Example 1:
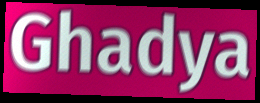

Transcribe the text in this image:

Ghadya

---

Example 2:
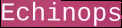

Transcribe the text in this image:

Echinops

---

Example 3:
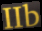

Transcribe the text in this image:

IIb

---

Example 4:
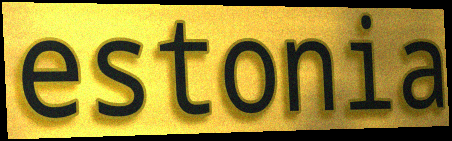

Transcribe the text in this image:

estonia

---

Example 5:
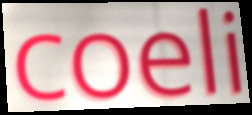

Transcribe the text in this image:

coeli